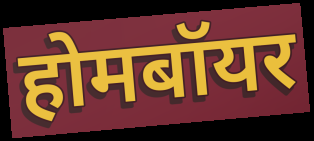
होमबॉयर